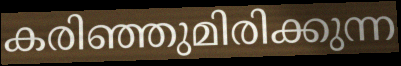
കരിഞ്ഞുമിരിക്കുന്ന